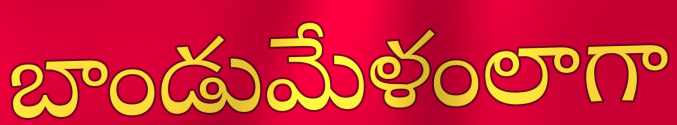
బాండుమేళంలాగా